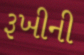
રૂખીની